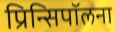
प्रिन्सिपॉलना